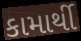
કામાર્થી